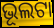
ଭୂଲଟା